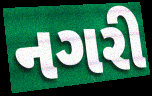
નગરી